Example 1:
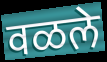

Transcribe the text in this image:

वळले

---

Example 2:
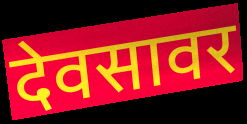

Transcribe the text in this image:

देवसावर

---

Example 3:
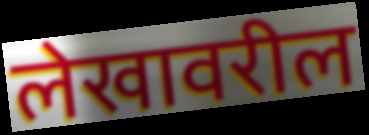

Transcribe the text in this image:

लेखावरील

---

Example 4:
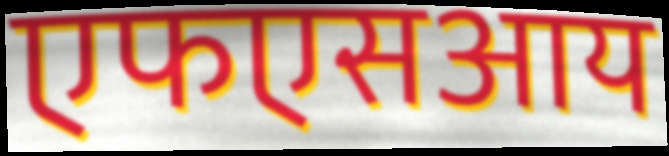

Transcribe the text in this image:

एफएसआय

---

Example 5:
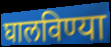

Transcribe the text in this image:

घालविण्या